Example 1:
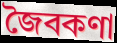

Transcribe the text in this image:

জৈবকণা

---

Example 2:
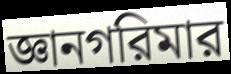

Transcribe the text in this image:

জ্ঞানগরিমার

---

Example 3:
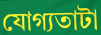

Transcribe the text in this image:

যোগ্যতাটা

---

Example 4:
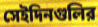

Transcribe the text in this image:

সেইদিনগুলির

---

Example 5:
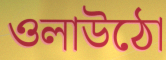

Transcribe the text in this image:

ওলাউঠো